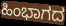
ಹಿಂಭಾಗದ